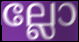
ല്ലോ